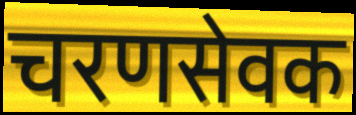
चरणसेवक